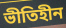
ভীতিহীন